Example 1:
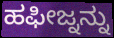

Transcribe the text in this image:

ಹಫೀಜ್ನನ್ನು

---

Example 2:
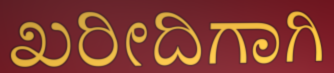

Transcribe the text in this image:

ಖರೀದಿಗಾಗಿ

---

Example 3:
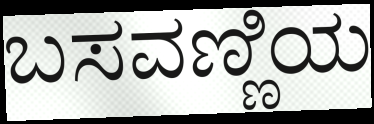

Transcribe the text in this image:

ಬಸವಣ್ಣಿಯ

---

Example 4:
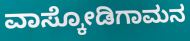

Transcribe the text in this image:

ವಾಸ್ಕೋಡಿಗಾಮನ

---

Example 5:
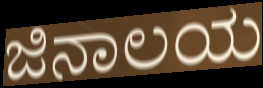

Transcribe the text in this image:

ಜಿನಾಲಯ